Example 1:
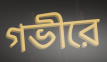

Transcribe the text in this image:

গভীরে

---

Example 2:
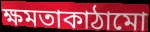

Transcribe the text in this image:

ক্ষমতাকাঠামো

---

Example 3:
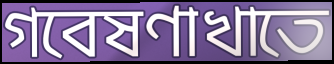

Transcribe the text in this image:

গবেষণাখাতে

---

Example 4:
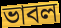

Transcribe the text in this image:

ভাবল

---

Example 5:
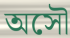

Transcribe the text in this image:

অসৌ